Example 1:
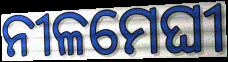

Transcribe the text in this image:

ନୀଳମେଘୀ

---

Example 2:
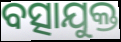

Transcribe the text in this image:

ବତ୍ସାଯୁକ୍ତ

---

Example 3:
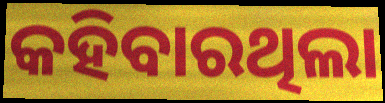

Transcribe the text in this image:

କହିବାରଥିଲା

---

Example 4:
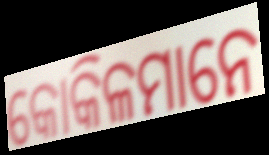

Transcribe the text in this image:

କୋକିଳମାନେ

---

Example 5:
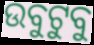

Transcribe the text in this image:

ଉବୁଟୁବୁ